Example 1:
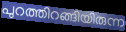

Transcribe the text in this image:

പുറത്തിറങ്ങിയിരുന്ന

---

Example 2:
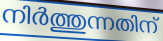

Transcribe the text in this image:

നിർത്തുന്നതിന്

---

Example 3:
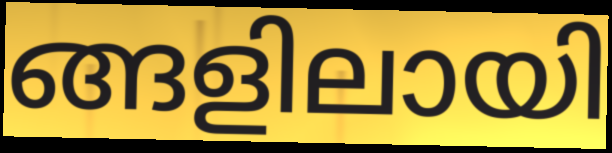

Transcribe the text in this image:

ങ്ങളിലായി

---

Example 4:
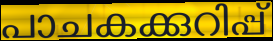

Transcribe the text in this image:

പാചകക്കുറിപ്പ്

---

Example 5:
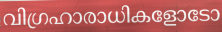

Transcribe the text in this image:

വിഗ്രഹാരാധികളോടോ